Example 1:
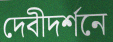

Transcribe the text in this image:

দেবীদর্শনে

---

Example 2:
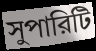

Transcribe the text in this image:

সুপারিটি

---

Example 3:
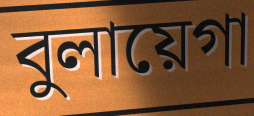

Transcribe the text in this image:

বুলায়েগা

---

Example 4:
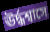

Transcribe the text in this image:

ঊর্দ্ধশ্বাসে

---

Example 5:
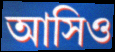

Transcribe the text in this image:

আসিও